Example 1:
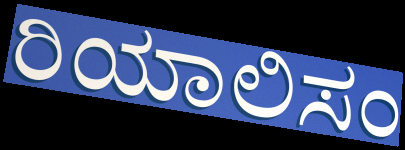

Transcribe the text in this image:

ರಿಯಾಲಿಸಂ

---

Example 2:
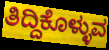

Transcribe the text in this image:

ತಿದ್ದಿಕೊಳ್ಳುವ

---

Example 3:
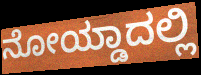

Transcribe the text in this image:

ನೋಯ್ಡಾದಲ್ಲಿ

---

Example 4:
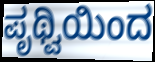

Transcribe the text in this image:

ಪೃಥ್ವಿಯಿಂದ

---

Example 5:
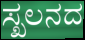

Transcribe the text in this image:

ಸ್ಖಲನದ